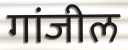
गांजील